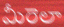
మీరెలా